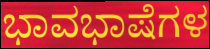
ಭಾವಭಾಷೆಗಳ